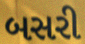
બસરી